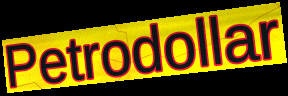
Petrodollar